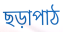
ছড়াপাঠ